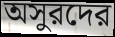
অসুরদের